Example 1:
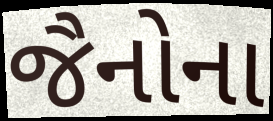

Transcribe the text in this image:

જૈનોના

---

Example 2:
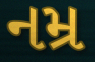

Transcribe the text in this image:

નમ્ર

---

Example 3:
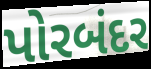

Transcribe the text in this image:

પોરબંદર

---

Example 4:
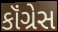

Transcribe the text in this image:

કૉંગ્રેસ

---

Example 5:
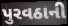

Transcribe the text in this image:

પુરવઠાની